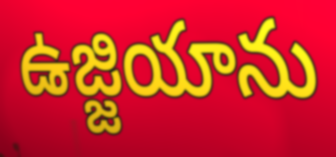
ఉజ్జియాను